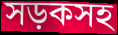
সড়কসহ